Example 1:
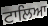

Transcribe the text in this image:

ਟਾਲਿਆ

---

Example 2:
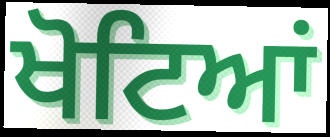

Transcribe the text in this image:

ਖੋਟਿਆਂ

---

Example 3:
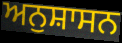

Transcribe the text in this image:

ਅਨੁਸ਼ਾਸਨ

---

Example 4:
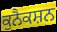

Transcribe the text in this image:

ਕੁਨੈਕਸ਼ਨ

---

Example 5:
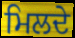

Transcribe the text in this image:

ਮਿਲਦੇ